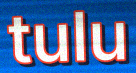
tulu